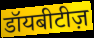
डॉयबीटीज़